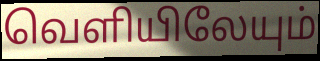
வெளியிலேயும்